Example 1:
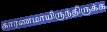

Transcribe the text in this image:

காரணமாயிருந்திருக்க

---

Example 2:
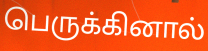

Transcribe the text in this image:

பெருக்கினால்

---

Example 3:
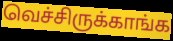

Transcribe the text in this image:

வெச்சிருக்காங்க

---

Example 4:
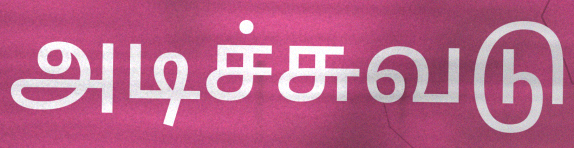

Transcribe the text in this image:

அடிச்சுவடு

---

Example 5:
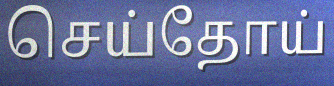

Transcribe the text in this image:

செய்தோய்